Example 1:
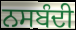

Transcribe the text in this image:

ਨਸਬੰਦੀ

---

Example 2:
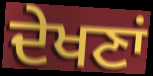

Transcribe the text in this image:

ਦੇਖਣਾਂ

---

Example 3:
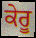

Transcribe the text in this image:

ਕੇਰੂ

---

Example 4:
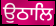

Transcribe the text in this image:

ਉਠਾਲਿ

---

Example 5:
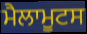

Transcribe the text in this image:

ਮੈਲਾਮੂਟਸ